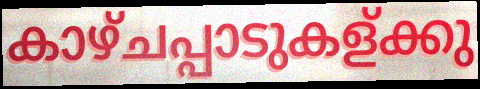
കാഴ്ചപ്പാടുകള്ക്കു